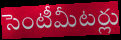
సెంటీమీటర్లు